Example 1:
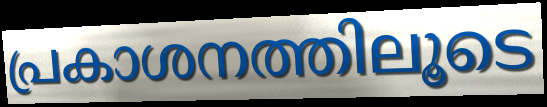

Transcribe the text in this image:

പ്രകാശനത്തിലൂടെ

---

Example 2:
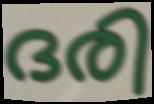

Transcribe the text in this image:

ദരി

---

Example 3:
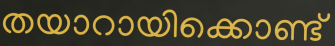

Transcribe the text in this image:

തയാറായിക്കൊണ്ട്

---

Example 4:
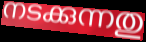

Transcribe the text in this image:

നടക്കുന്നതു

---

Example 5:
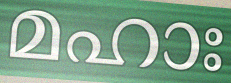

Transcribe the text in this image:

മഹാഃ